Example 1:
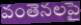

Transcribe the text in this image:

వంతెనలపై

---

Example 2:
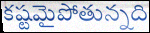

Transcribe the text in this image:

కష్టమైపోతున్నది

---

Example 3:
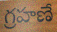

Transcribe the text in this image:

గ్రహణే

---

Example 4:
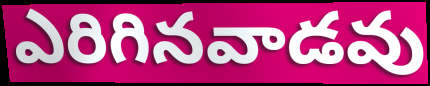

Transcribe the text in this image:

ఎరిగినవాడవు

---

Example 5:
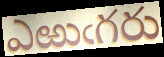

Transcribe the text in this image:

ఎఱుఁగరు